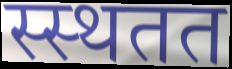
स्स्थतत